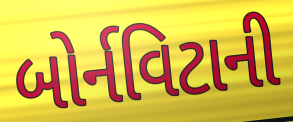
બોર્નવિટાની